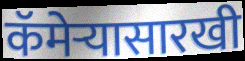
कॅमेऱ्यासारखी